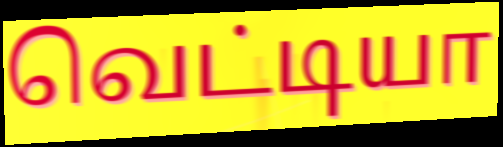
வெட்டியா